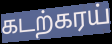
கடற்கரய்